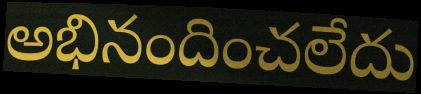
అభినందించలేదు